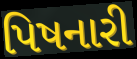
પિષનારી